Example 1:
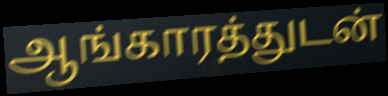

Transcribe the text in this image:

ஆங்காரத்துடன்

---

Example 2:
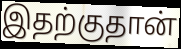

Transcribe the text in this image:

இதற்குதான்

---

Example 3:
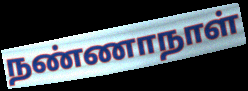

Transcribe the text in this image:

நண்ணாநாள்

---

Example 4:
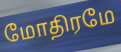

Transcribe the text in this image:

மோதிரமே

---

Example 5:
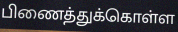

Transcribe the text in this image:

பிணைத்துக்கொள்ள